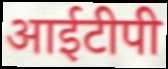
आईटीपी